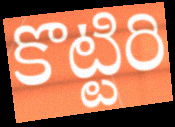
కొట్టిరి